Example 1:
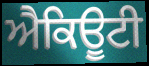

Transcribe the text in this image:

ਐਕਿਊਟੀ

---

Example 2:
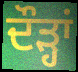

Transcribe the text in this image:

ਦੌੜ੍ਹਾਂ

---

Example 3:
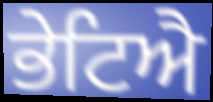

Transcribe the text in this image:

ਭੇਟਿਐ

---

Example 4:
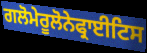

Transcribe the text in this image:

ਗਲੋਮੇਰੂਲੋਨੇਫ੍ਰਾਈਟਿਸ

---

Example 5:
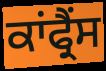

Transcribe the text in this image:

ਕਾਂਫ੍ਰੈਂਸ